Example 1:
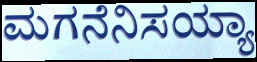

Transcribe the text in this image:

ಮಗನೆನಿಸಯ್ಯಾ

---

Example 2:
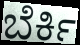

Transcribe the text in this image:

ಬೆರ್ಕಿ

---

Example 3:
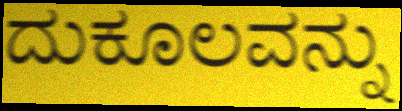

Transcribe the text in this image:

ದುಕೂಲವನ್ನು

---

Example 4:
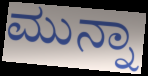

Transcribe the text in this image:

ಮುನ್ನಾ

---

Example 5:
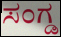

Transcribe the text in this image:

ಸಂಗ್ಡ